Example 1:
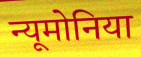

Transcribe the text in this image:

न्यूमोनिया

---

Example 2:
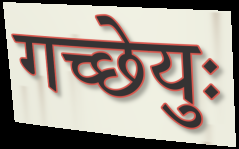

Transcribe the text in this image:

गच्छेयुः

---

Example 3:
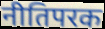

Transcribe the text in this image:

नीतिपरक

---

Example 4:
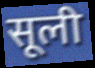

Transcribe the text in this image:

सूली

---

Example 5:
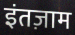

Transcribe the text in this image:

इंतज़ाम